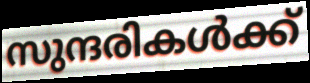
സുന്ദരികൾക്ക്